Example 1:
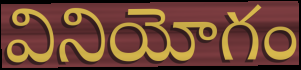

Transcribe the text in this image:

వినియోగం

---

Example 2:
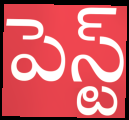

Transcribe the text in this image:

పెస్ట్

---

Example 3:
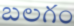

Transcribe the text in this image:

బలగం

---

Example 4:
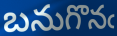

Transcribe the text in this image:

బనుగొనఁ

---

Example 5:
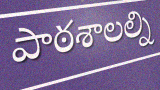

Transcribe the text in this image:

పాఠశాలల్ని